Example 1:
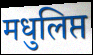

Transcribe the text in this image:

मधुलिप्त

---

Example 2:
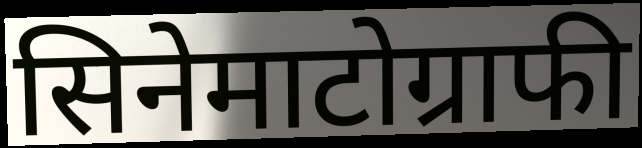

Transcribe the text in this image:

सिनेमाटोग्राफी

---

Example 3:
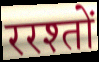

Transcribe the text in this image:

ररश्तों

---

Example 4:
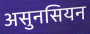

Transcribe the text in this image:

असुनसियन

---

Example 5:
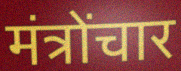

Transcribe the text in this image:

मंत्रोंचार